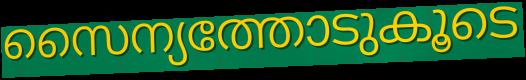
സൈന്യത്തോടുകൂടെ